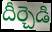
దీర్చెడి